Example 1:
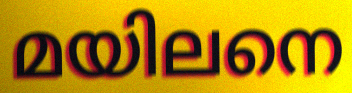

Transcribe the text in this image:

മയിലനെ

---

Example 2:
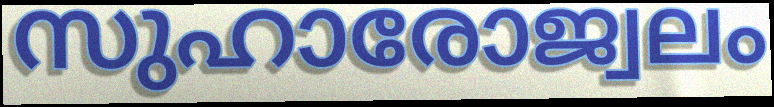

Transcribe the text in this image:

സുഹാരോജ്വലം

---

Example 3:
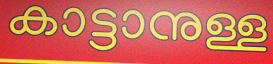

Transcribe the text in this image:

കാട്ടാനുള്ള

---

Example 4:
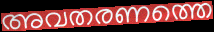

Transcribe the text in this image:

അവതരണത്തെ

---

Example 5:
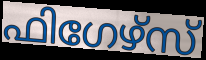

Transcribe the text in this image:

ഫിഗേഴ്സ്